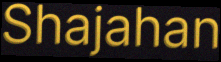
Shajahan